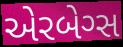
એરબેગ્સ